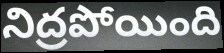
నిద్రపోయింది